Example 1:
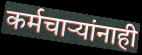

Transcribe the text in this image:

कर्मचार्‍यांनाही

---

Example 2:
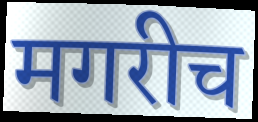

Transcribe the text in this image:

मगरीच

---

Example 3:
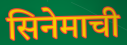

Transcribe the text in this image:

सिनेमाची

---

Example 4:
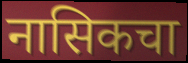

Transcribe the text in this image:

नासिकचा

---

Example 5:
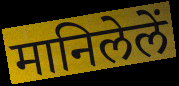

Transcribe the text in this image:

मानिलेलें